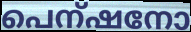
പെന്ഷനോ